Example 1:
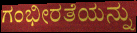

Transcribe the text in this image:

ಗಂಭೀರತೆಯನ್ನು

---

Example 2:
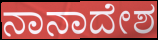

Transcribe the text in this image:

ನಾನಾದೇಶ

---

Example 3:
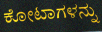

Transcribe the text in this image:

ಕೋಟಾಗಳನ್ನು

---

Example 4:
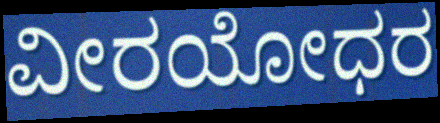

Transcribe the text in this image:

ವೀರಯೋಧರ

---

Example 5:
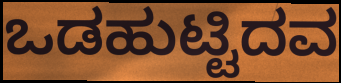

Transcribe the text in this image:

ಒಡಹುಟ್ಟಿದವ